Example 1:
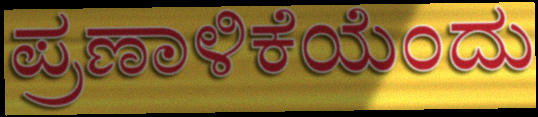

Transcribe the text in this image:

ಪ್ರಣಾಳಿಕೆಯೆಂದು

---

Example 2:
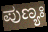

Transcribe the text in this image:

ಪುಣ್ಯಃ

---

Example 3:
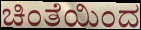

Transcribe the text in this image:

ಚಿಂತೆಯಿಂದ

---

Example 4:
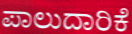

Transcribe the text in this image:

ಪಾಲುದಾರಿಕೆ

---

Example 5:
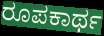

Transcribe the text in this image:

ರೂಪಕಾರ್ಥ